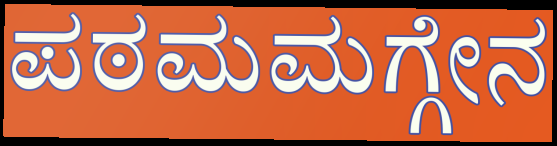
ಪಠಮಮಗ್ಗೇನ